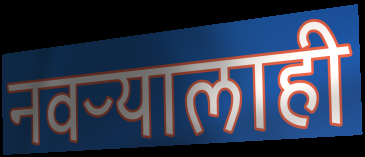
नवऱ्यालाही